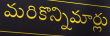
మరికొన్నిమార్లు